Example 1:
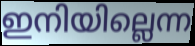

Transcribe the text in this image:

ഇനിയില്ലെന്ന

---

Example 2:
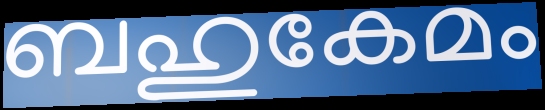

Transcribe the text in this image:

ബഹുകേമം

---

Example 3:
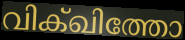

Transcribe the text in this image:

വിക്ഖിത്തോ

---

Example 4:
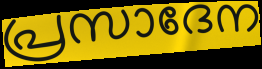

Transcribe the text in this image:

പ്രസാദേന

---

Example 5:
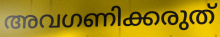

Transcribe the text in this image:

അവഗണിക്കരുത്